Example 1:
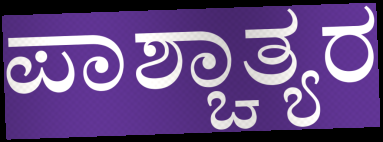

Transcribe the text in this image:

ಪಾಶ್ಚಾತ್ಯರ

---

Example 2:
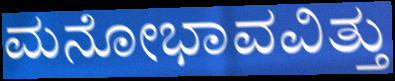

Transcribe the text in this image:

ಮನೋಭಾವವಿತ್ತು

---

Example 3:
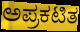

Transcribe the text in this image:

ಅಪ್ರಕಟಿತ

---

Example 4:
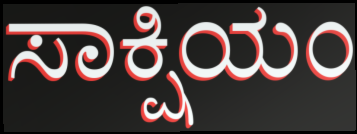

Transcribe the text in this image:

ಸಾಕ್ಷಿಯಂ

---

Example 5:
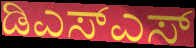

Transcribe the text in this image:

ಡಿಎಸ್ಎಸ್